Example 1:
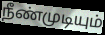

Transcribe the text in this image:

நீண்முடியும்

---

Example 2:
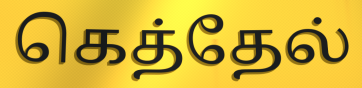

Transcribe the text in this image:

கெத்தேல்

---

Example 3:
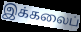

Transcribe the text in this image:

இக்கலைப்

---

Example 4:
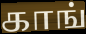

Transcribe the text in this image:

காங்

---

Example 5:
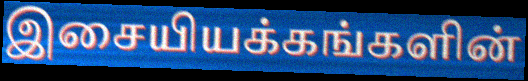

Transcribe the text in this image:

இசையியக்கங்களின்